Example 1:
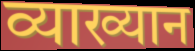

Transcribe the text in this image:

व्‍याख्‍यान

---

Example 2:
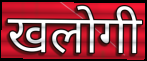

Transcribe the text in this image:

खलोगी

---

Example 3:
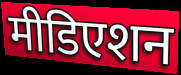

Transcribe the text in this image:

मीडिएशन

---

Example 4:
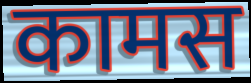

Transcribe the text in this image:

कामस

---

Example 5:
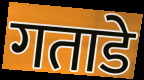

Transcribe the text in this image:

गताडे